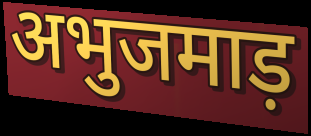
अभुजमाड़